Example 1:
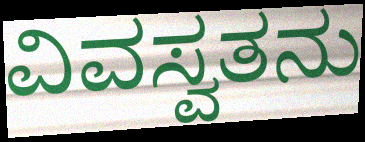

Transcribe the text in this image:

ವಿವಸ್ವತನು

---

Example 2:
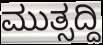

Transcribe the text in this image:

ಮುತ್ಸದ್ದಿ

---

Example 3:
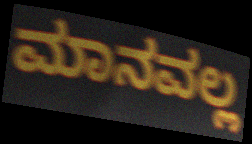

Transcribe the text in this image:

ಮಾನವಲ್ಲ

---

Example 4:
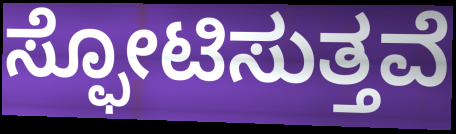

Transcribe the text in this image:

ಸ್ಫೋಟಿಸುತ್ತವೆ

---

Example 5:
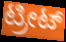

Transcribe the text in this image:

ಟ್ರೀಟ್